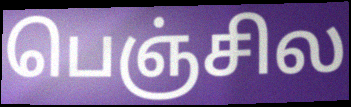
பெஞ்சில